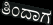
ತಿಂದಾಗ